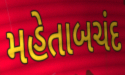
મહેતાબચંદ